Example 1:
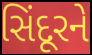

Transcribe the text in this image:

સિંદૂરને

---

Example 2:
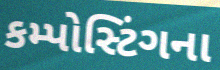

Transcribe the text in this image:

કમ્પોસ્ટિંગના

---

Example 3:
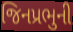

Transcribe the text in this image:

જિનપ્રભુની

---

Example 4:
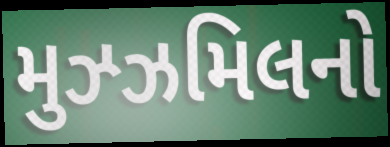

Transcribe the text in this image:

મુઝ્ઝમિલનો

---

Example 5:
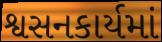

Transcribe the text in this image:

શ્વસનકાર્યમાં